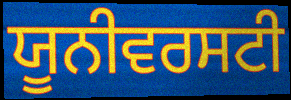
ਯੂਨੀਵਰਸਟੀ